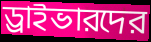
ড্রাইভারদের